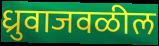
ध्रुवाजवळील